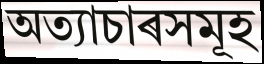
অত্যাচাৰসমূহ